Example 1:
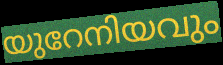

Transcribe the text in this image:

യുറേനിയവും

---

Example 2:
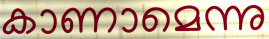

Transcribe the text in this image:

കാണാമെന്നു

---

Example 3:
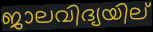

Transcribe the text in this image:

ജാലവിദ്യയില്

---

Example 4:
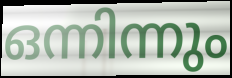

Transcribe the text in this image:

ഒന്നിന്നും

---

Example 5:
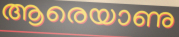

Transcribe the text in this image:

ആരെയാണു